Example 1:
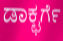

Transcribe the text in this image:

ಡಾಕ್ಟರ್ಗೆ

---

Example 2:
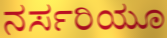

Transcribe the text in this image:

ನರ್ಸರಿಯೂ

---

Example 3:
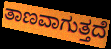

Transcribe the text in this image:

ತಾಣವಾಗುತ್ತದೆ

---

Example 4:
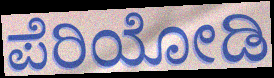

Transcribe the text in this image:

ಪೆರಿಯೋಡಿ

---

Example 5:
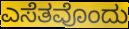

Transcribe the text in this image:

ಎಸೆತವೊಂದು